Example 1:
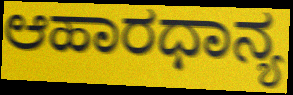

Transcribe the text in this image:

ಆಹಾರಧಾನ್ಯ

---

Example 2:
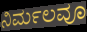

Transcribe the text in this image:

ನಿರ್ಮಲವೂ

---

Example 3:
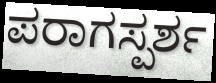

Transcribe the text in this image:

ಪರಾಗಸ್ಪರ್ಶ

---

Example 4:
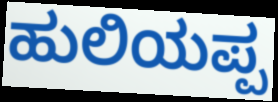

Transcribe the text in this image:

ಹುಲಿಯಪ್ಪ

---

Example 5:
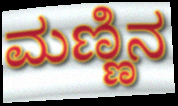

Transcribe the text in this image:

ಮಣ್ಣಿನ